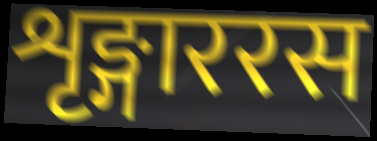
शृङ्गाररस